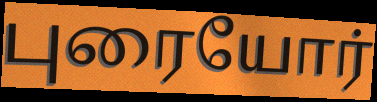
புரையோர்